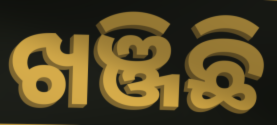
ଖଞ୍ଜିଛି